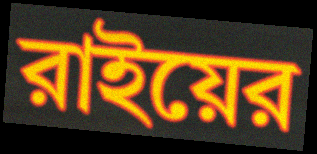
রাইয়ের